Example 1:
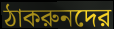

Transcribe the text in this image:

ঠাকরুনদের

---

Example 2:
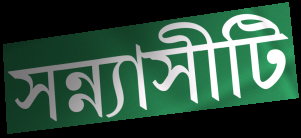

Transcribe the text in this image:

সন্ন্যাসীটি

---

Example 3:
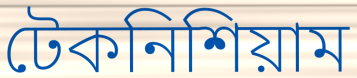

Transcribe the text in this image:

টেকনিশিয়াম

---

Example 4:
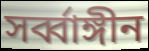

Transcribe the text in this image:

সর্ব্বাঙ্গীন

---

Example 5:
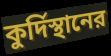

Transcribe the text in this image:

কুর্দিস্থানের